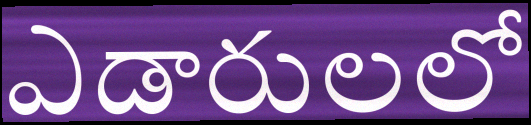
ఎడారులలో